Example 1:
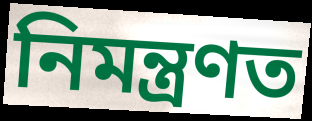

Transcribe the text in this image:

নিমন্ত্ৰণত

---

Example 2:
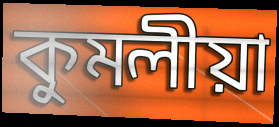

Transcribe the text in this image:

কুমলীয়া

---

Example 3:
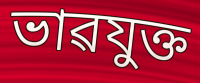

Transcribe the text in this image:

ভাৱযুক্ত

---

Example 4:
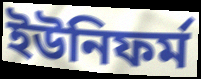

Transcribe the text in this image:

ইউনিফৰ্ম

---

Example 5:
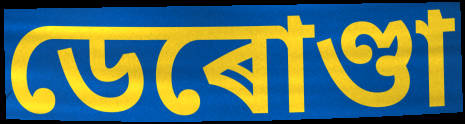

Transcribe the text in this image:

ডেৰোণ্ডা